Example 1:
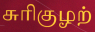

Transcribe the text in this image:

சுரிகுழற்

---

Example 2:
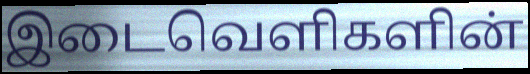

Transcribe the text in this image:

இடைவெளிகளின்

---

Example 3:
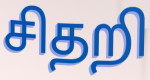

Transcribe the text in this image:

சிதறி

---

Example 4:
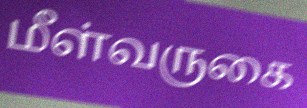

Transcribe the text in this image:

மீள்வருகை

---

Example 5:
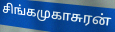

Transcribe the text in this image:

சிங்கமுகாசுரன்